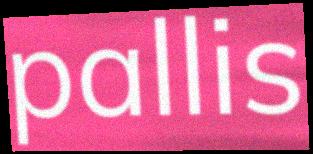
pallis